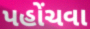
પહોંચવા